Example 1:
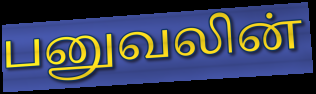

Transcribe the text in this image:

பனுவலின்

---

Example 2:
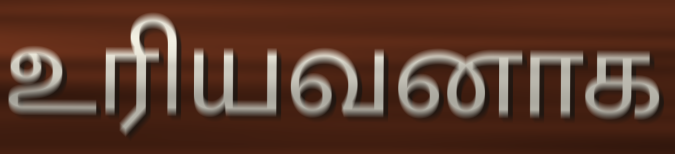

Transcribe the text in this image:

உரியவனாக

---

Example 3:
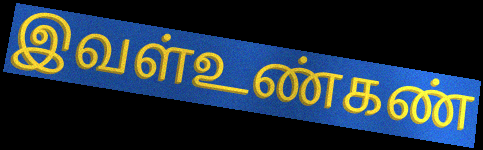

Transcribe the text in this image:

இவள்உண்கண்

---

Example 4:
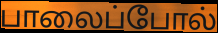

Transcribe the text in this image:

பாலைப்போல்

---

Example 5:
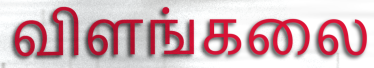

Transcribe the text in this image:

விளங்கலை